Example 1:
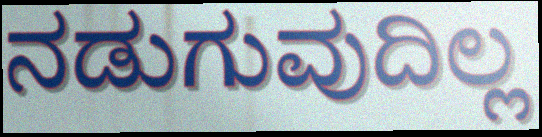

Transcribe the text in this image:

ನಡುಗುವುದಿಲ್ಲ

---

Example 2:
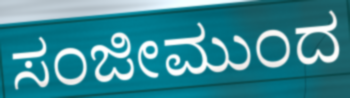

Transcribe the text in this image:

ಸಂಜೀಮುಂದ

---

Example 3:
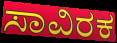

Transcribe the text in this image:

ಸಾವಿರಕ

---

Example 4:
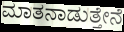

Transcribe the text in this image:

ಮಾತನಾಡುತ್ತೇನೆ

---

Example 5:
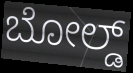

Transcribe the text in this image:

ಬೋಲ್ಡ್